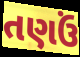
તણઉં